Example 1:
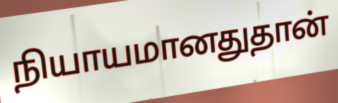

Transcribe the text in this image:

நியாயமானதுதான்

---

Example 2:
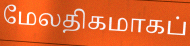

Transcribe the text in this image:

மேலதிகமாகப்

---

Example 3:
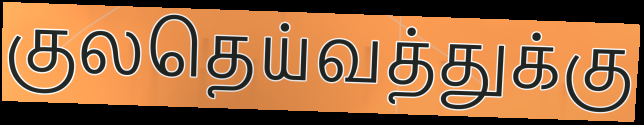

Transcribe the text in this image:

குலதெய்வத்துக்கு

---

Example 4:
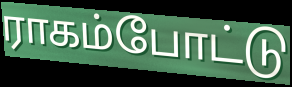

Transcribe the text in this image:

ராகம்போட்டு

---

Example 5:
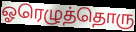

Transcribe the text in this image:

ஓரெழுத்தொரு